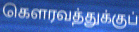
கௌரவத்துக்குப்